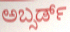
ಅಬ್ಸರ್ಡ್